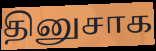
தினுசாக